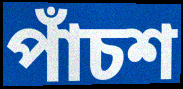
পাঁচশ